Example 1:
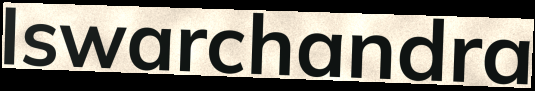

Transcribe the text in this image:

Iswarchandra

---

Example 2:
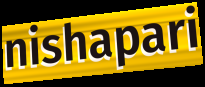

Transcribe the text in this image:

nishapari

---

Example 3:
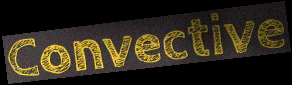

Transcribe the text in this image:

Convective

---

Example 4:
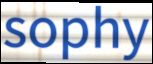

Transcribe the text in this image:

sophy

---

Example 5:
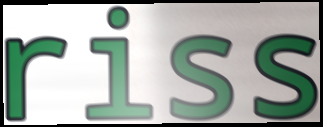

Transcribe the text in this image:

riss